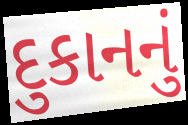
દુકાનનું